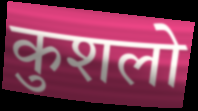
कुशलो